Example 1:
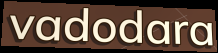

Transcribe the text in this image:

vadodara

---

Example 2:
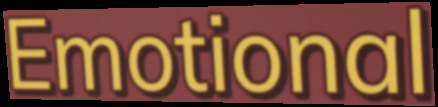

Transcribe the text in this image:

Emotional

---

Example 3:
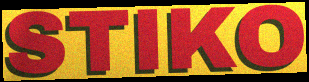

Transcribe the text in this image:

STIKO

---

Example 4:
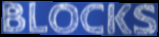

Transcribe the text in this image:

BLOCKS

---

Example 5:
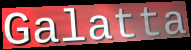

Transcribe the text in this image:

Galatta